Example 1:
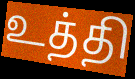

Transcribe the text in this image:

உத்தி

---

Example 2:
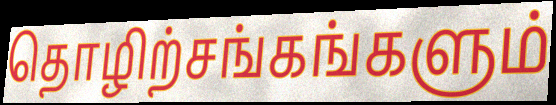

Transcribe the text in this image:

தொழிற்சங்கங்களும்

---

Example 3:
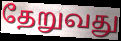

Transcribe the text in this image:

தேறுவது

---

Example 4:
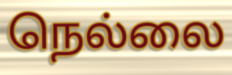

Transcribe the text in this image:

நெல்லை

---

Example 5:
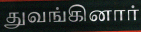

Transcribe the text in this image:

துவங்கினார்